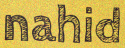
nahid